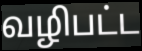
வழிபட்ட